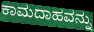
ಕಾಮದಾಹವನ್ನು